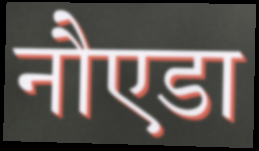
नौएडा